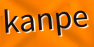
kanpe